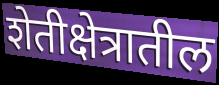
शेतीक्षेत्रातील